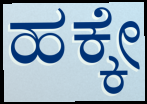
ಹಕ್ಕೇ